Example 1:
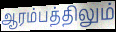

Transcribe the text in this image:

ஆரம்பத்திலும்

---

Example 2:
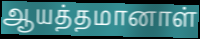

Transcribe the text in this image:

ஆயத்தமானாள்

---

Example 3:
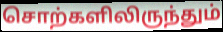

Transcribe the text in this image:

சொற்களிலிருந்தும்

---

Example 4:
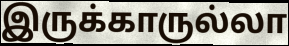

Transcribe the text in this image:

இருக்காருல்லா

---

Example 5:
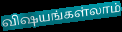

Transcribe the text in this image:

விஷயங்கள்லாம்